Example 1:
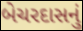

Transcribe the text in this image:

બેચરદાસનું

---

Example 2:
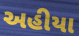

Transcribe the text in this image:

અહીયા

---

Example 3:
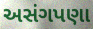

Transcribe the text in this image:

અસંગપણા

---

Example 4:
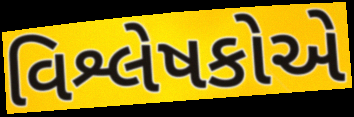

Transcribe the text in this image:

વિશ્લેષકોએ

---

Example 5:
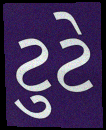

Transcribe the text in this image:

ટુટે